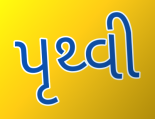
પૃથ્વી